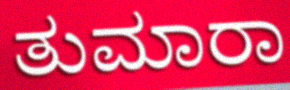
ತುಮಾರಾ